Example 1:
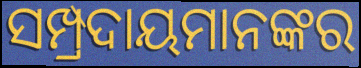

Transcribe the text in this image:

ସମ୍ପ୍ରଦାୟମାନଙ୍କର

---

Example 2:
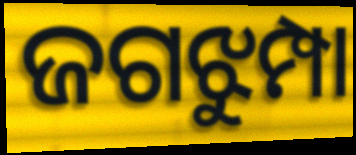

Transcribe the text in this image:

ଜଗଝୁମ୍ପା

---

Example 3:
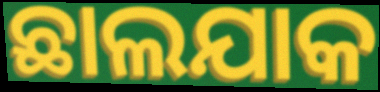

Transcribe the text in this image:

ଛାଲଯାକ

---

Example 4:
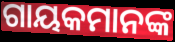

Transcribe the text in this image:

ଗାୟକମାନଙ୍କ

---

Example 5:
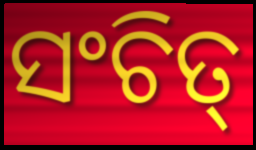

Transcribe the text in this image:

ସଂଚିତ୍